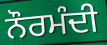
ਨੌਰਮੰਦੀ